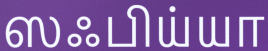
ஸஃபிய்யா